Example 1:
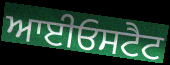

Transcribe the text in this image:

ਆਈਓਸਟੈਟ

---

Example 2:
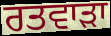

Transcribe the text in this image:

ਰਤਵਾੜਾ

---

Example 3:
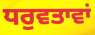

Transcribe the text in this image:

ਧਰੁਵਤਾਵਾਂ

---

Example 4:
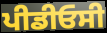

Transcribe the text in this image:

ਪੀਡੀਓਸੀ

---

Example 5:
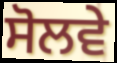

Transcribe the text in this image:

ਸੋਲਵੇ